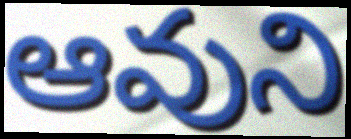
ఆవుని